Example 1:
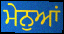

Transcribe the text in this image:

ਮੇਨੁਆਂ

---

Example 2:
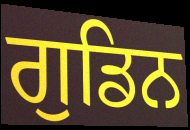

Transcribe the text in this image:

ਗੁਡਿਨ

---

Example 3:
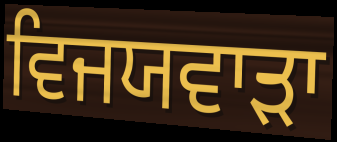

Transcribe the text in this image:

ਵਿਜਯਵਾੜਾ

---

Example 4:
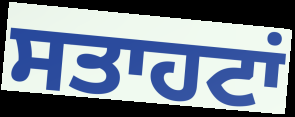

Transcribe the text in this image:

ਸਤਾਹਟਾਂ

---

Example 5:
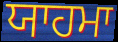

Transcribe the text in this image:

ਯਾਹਮਾ